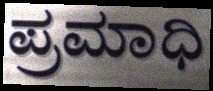
ಪ್ರಮಾಧಿ